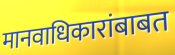
मानवाधिकारांबाबत